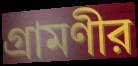
গ্রামণীর